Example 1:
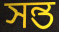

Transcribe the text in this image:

সন্ত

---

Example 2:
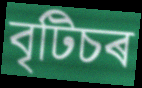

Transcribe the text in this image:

বৃটিচৰ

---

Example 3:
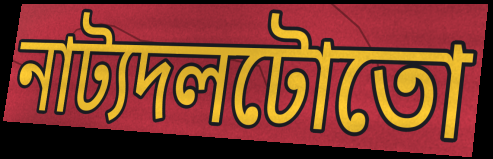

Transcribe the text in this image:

নাট্যদলটোতো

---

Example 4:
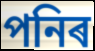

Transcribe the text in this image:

পনিৰ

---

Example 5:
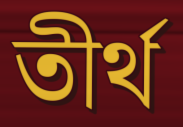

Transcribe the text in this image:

তীৰ্থ